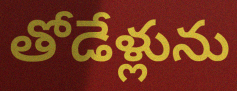
తోడేళ్లును